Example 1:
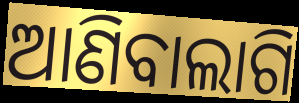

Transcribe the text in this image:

ଆଣିବାଲାଗି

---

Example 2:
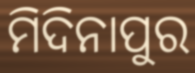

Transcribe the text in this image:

ମିଦିନାପୁର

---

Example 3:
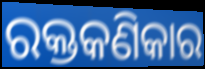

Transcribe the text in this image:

ରକ୍ତକଣିକାର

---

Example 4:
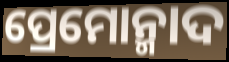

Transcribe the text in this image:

ପ୍ରେମୋନ୍ମାଦ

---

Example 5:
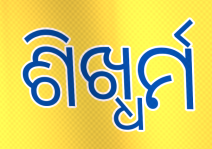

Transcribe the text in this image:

ଶିଖ୍ଧର୍ମ